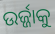
ଉର୍ଜ୍ଜାକୁ